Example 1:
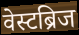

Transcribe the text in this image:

वेस्टब्रिज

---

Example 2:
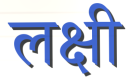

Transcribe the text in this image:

लक्षी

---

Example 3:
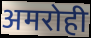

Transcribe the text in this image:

अमरोही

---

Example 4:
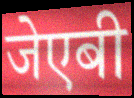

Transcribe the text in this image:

जेएबी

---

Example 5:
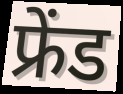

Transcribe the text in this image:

फ्रेंड